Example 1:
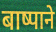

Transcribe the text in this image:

बाष्पाने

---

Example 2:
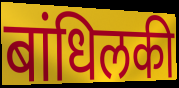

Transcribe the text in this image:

बांधिलकी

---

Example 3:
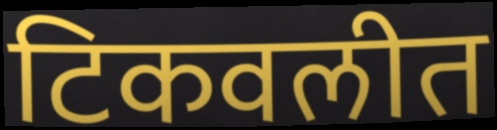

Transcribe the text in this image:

टिकवलीत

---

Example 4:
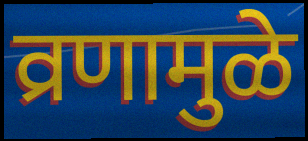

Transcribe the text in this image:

व्रणामुळे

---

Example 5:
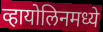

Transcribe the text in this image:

व्हायोलिनमध्ये